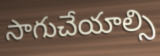
సాగుచేయాల్సి